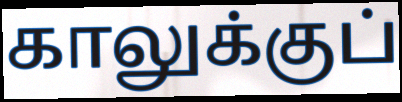
காலுக்குப்